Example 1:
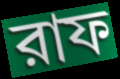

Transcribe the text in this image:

রাফ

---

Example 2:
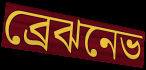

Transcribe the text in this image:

ব্রেঝনেভ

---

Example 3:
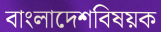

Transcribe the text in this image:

বাংলাদেশবিষয়ক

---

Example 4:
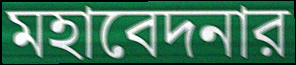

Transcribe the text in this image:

মহাবেদনার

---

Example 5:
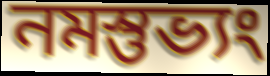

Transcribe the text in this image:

নমস্তুভ্যং